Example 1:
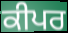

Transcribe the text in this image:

ਕੀਪਰ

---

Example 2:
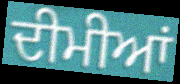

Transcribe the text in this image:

ਦੀਮੀਆਂ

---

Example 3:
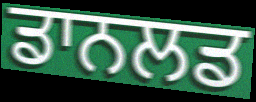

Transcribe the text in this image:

ਡਾਨਲਡ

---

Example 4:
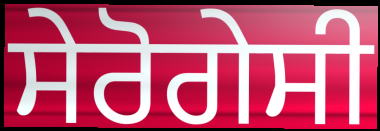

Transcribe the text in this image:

ਸੇਰੋਗੇਸੀ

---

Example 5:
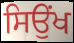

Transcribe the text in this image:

ਸਿਉਂਖ